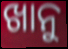
ଖାନୁ